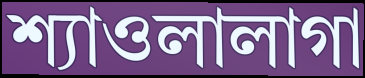
শ্যাওলালাগা